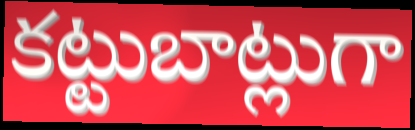
కట్టుబాట్లుగా